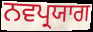
ਨਵਪ੍ਰਯਾਗ